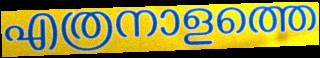
എത്രനാളത്തെ